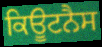
ਕਿਊਟਨੈਸ